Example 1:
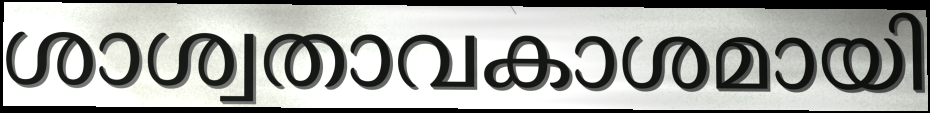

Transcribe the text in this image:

ശാശ്വതാവകാശമായി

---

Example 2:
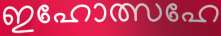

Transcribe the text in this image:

ഇഹോത്സഹേ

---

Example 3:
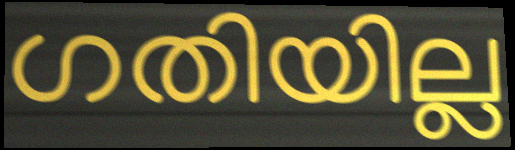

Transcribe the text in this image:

ഗതിയില്ല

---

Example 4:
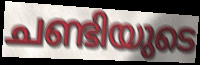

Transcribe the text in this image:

ചണ്ടിയുടെ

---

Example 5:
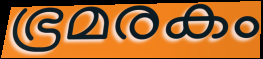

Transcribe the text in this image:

ഭ്രമരകം